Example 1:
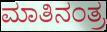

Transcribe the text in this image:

ಮಾತಿನಂತ್ರ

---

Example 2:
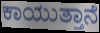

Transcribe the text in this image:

ಕಾಯುತ್ತಾನೆ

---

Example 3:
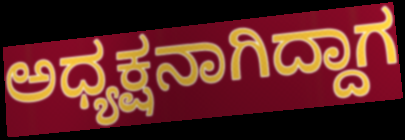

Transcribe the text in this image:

ಅಧ್ಯಕ್ಷನಾಗಿದ್ದಾಗ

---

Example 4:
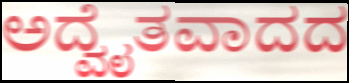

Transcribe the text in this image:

ಅದ್ವೈತವಾದದ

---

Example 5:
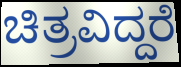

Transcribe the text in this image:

ಚಿತ್ರವಿದ್ದರೆ